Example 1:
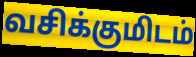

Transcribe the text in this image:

வசிக்குமிடம்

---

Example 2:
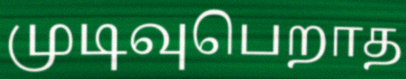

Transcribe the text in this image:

முடிவுபெறாத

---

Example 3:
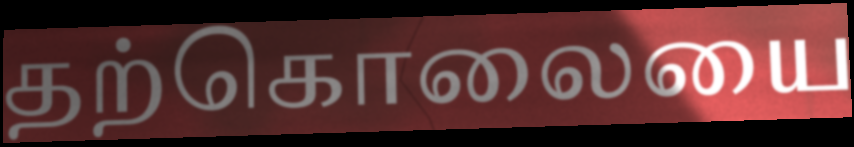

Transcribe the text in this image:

தற்கொலையை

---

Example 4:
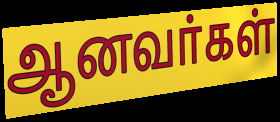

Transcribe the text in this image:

ஆனவர்கள்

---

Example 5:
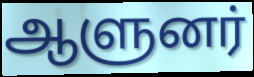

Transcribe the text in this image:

ஆளுனர்